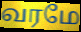
வரமே